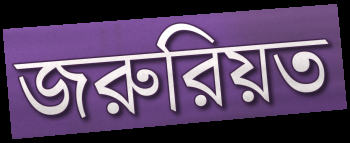
জরুরিয়ত